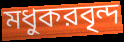
মধুকরবৃন্দ